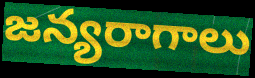
జన్యరాగాలు